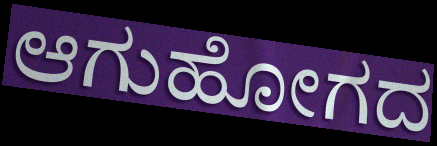
ಆಗುಹೋಗದ